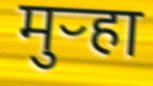
मुऱ्हा